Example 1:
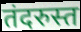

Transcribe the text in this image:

तंदरुस्त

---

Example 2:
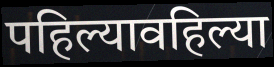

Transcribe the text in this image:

पहिल्यावहिल्या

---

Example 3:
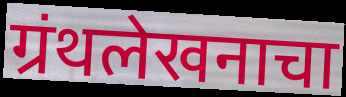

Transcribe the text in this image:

ग्रंथलेखनाचा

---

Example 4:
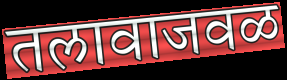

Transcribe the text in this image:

तलावाजवळ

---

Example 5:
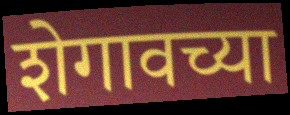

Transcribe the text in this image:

शेगावच्या